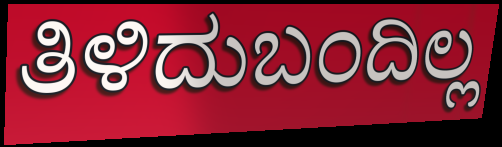
ತಿಳಿದುಬಂದಿಲ್ಲ